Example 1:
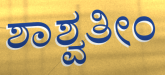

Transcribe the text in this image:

ಶಾಶ್ವತೀಂ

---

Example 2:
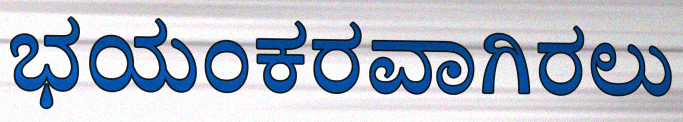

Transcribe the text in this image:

ಭಯಂಕರವಾಗಿರಲು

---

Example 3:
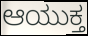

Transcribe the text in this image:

ಆಯುಕ್ತ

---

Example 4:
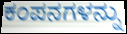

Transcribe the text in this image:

ಕಂಪನಗಳನ್ನು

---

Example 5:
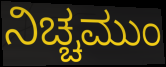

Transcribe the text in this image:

ನಿಚ್ಚಮುಂ